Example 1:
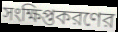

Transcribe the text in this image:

সংক্ষিপ্তকরণের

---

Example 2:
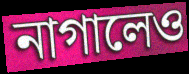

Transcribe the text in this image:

নাগালেও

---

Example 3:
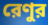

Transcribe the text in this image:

রেণুর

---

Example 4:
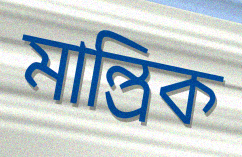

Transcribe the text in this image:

মান্ত্রিক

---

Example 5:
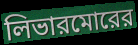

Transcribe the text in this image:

লিভারমোরের